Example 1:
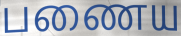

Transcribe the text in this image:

பணைய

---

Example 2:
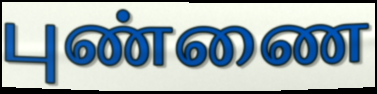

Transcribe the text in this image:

புண்ணை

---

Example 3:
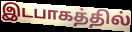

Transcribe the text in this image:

இடபாகத்தில்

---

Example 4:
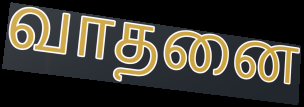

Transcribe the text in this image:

வாதனை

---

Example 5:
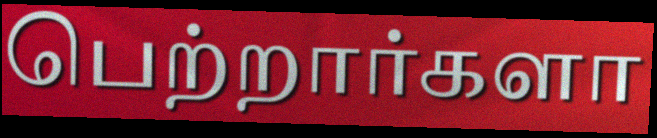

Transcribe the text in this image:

பெற்றார்களா